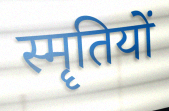
स्मॄतियों